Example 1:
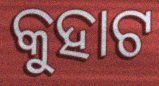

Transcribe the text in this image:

କୁହାଟ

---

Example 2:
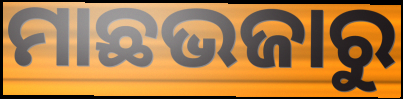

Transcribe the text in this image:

ମାଛଭଜାରୁ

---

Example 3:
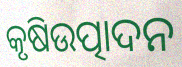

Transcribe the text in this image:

କୃଷିଉତ୍ପାଦନ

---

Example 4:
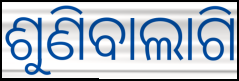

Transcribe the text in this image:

ଶୁଣିବାଲାଗି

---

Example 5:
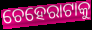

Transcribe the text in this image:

ଚେହେରାଟାକୁ